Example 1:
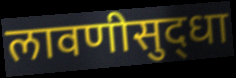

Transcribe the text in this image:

लावणीसुद्धा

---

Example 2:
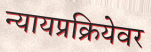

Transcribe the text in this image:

न्यायप्रक्रियेवर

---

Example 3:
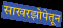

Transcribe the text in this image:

साखरझोपेतून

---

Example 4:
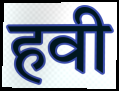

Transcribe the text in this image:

हवी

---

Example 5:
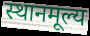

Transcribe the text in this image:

स्थानमूल्य